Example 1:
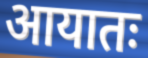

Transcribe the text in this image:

आयातः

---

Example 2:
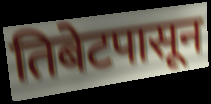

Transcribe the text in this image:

तिबेटपासून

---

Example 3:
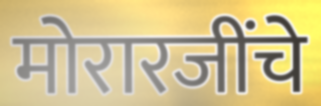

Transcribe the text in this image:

मोरारजींचे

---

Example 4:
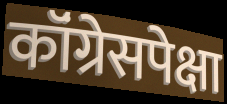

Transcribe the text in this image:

कॉंग्रेसपेक्षा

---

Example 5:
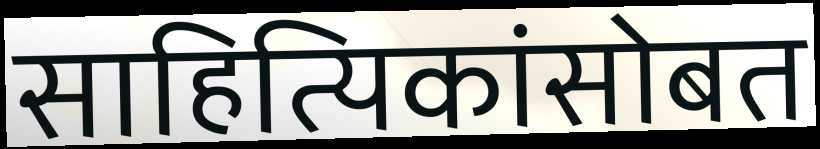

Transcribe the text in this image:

साहित्यिकांसोबत